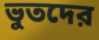
ভুতদের